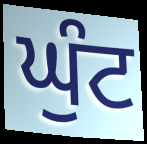
ਘੁੰਟ